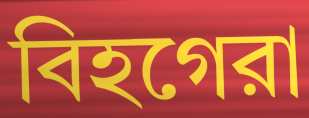
বিহগেরা